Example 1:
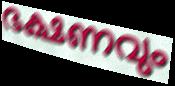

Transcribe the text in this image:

ഭക്ഷണവും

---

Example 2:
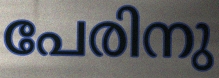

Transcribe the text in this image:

പേരിനു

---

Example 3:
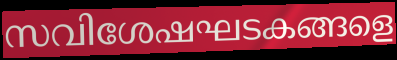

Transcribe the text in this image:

സവിശേഷഘടകങ്ങളെ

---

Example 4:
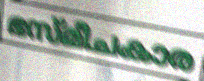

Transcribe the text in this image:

ഭസ്മീചകാര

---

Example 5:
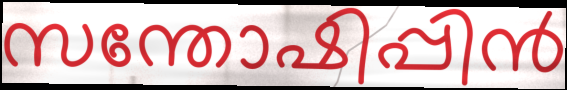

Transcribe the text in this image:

സന്തോഷിപ്പിൻ